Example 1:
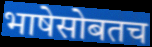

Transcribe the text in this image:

भाषेसोबतच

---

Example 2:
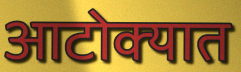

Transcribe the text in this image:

आटोक्‍यात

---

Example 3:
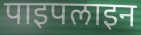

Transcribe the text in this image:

पाइपलाइन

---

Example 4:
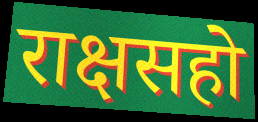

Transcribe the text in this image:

राक्षसहो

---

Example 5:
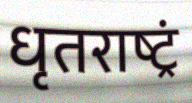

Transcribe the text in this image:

धृतराष्ट्रं